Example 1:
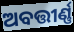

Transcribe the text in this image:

ଅବତ୍ତୀର୍ଣ୍ଣ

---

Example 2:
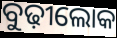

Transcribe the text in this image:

ବୁଢ଼ୀଲୋକ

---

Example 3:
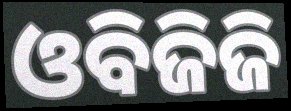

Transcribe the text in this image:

ଓବିଜିଜି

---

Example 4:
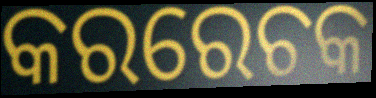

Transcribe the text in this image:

କରରେଚକ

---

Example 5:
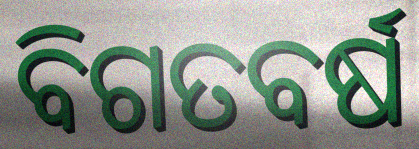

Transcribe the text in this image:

ବିଗତବର୍ଷ